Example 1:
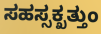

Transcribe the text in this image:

ಸಹಸ್ಸಕ್ಖತ್ತುಂ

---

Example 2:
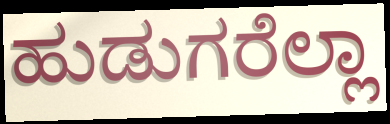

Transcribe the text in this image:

ಹುಡುಗರೆಲ್ಲಾ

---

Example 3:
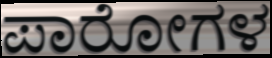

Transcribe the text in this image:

ಪಾರೋಗಳ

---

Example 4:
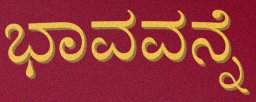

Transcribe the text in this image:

ಭಾವವನ್ನೆ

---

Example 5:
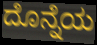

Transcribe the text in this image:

ದೊನ್ನೆಯ